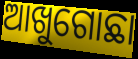
ଆଖୁଗୋଛା